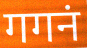
गगनं